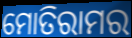
ମୋତିରାମର